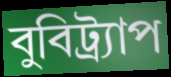
বুবিট্র্যাপ